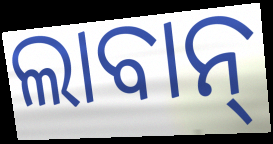
ଲାବାନ୍